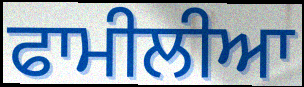
ਫਾਮੀਲੀਆ